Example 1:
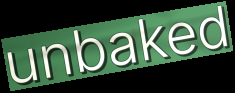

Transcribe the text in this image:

unbaked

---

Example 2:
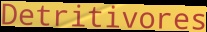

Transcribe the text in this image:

Detritivores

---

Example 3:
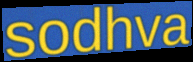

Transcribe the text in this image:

sodhva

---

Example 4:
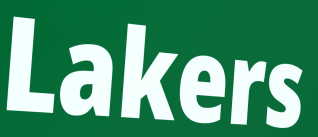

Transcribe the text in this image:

Lakers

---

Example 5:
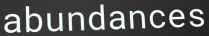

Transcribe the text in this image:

abundances